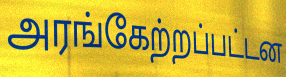
அரங்கேற்றப்பட்டன